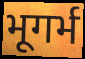
भूगर्भ